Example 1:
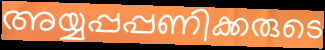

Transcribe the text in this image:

അയ്യപ്പപ്പണിക്കരുടെ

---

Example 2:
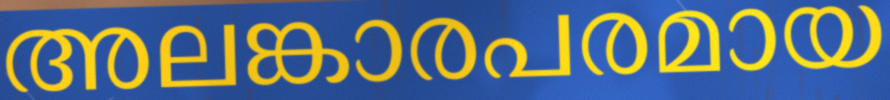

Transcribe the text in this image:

അലങ്കാരപരമായ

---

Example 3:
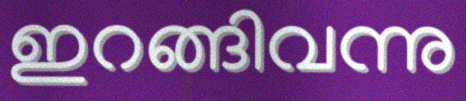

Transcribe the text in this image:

ഇറങ്ങിവന്നു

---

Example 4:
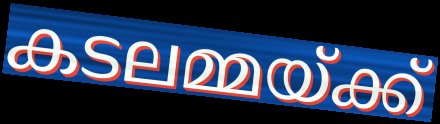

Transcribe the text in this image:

കടലമ്മയ്ക്ക്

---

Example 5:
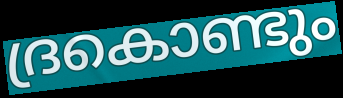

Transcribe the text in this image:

ദ്രകൊണ്ടും